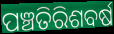
ପଞ୍ଚତିରିଶବର୍ଷ